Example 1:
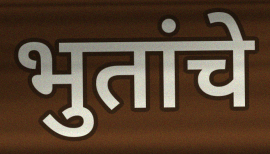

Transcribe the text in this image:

भुतांचे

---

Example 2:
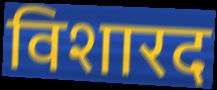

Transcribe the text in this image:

विशारद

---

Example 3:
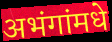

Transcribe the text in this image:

अभंगांमधे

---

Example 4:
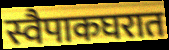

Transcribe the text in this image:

स्वैपाकघरात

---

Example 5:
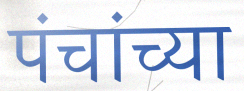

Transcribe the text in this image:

पंचांच्या